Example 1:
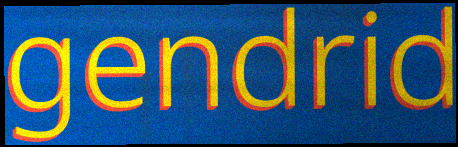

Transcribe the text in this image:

gendrid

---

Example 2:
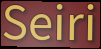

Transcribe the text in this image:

Seiri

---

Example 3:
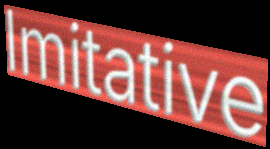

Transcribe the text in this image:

Imitative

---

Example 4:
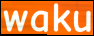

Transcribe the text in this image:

waku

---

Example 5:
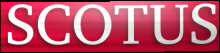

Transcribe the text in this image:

SCOTUS